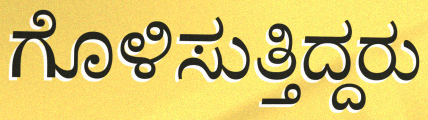
ಗೊಳಿಸುತ್ತಿದ್ದರು